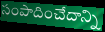
సంపాదించేదాన్ని